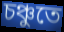
চঞ্চুতে